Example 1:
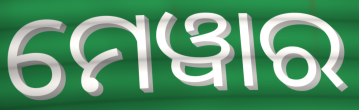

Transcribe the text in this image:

ମେୱାର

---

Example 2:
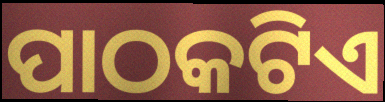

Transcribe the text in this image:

ପାଠକଟିଏ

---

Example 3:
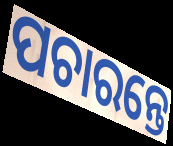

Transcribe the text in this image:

ପଚାରନ୍ତେ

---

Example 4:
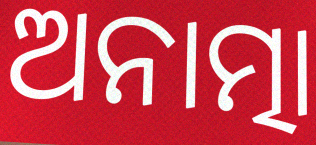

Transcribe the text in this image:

ଅନାତ୍ମା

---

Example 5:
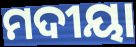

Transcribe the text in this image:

ମଦୀୟା